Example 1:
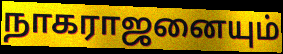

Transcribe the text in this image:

நாகராஜனையும்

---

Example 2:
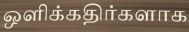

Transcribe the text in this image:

ஒளிக்கதிர்களாக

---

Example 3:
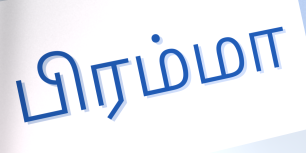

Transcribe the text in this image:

பிரம்மா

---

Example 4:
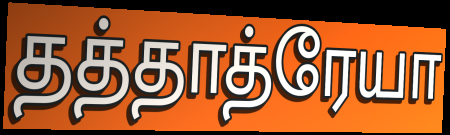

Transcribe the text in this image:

தத்தாத்ரேயா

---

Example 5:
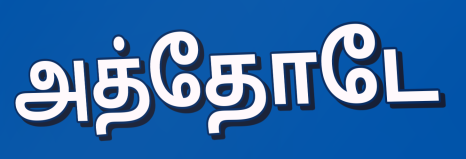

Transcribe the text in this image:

அத்தோடே